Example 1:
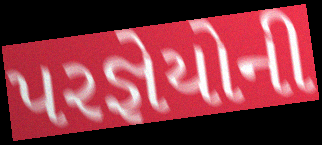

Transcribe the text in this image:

પરજ્ઞેયોની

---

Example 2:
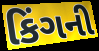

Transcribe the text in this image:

કિંગની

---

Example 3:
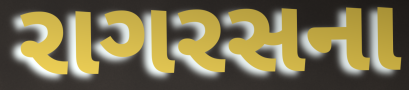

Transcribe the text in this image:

રાગરસના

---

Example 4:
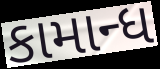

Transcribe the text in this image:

કામાન્ધ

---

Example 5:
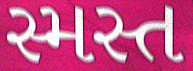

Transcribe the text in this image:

સ્મસ્ત